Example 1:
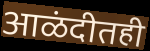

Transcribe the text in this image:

आळंदीतही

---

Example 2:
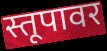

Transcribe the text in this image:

स्तूपावर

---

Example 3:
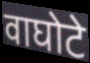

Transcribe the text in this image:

वाघोटे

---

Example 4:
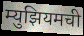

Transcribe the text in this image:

म्युझियमची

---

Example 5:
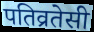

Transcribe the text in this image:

पतिव्रतेसी